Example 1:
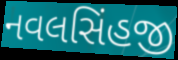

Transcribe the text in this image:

નવલસિંહજી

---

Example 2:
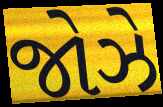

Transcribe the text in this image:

જોઝે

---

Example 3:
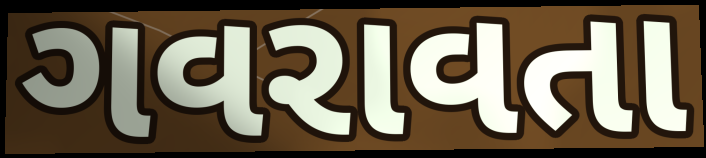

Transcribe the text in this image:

ગવરાવતા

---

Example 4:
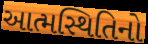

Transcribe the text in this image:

આત્મસ્થિતિનો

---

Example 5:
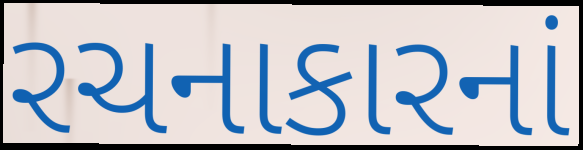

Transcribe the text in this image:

રચનાકારનાં